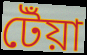
টেঁয়া